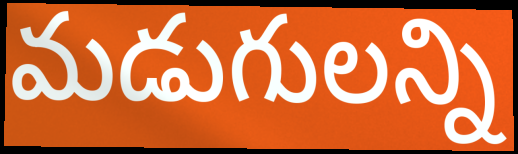
మడుగులన్ని